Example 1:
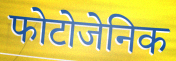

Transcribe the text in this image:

फोटोजेनिक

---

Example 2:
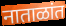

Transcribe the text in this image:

नाताळांत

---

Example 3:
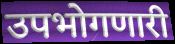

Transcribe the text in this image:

उपभोगणारी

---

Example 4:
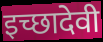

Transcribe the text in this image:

इच्छादेवी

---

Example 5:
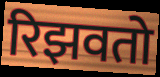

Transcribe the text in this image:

रिझवतो